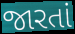
જારતાં